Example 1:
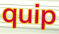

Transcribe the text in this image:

quip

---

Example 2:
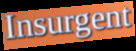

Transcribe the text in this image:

Insurgent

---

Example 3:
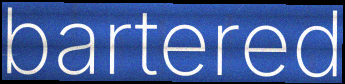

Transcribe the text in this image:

bartered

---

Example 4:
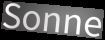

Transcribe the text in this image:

Sonne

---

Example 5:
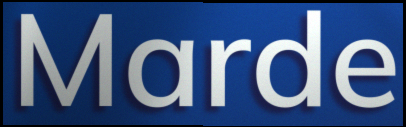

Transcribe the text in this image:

Marde